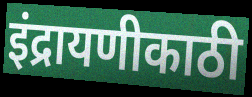
इंद्रायणीकाठी